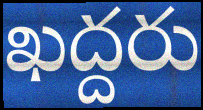
ఖద్దరు